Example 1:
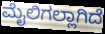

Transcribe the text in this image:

ಮೈಲಿಗಲ್ಲಾಗಿದೆ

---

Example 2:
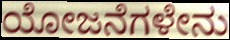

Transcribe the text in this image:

ಯೋಜನೆಗಳೇನು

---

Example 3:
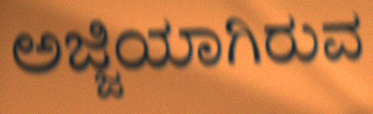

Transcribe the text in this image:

ಅಜ್ಜಿಯಾಗಿರುವ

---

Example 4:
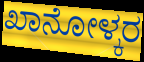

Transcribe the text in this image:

ಖಾನೋಳ್ಕರ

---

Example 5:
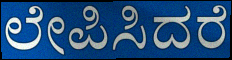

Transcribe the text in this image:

ಲೇಪಿಸಿದರೆ